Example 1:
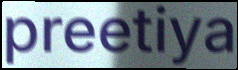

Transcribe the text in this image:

preetiya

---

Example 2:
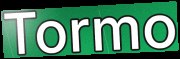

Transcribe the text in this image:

Tormo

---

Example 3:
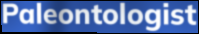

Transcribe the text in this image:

Paleontologist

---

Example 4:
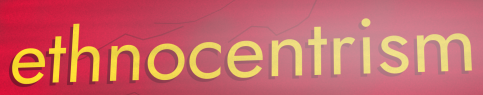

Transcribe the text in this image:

ethnocentrism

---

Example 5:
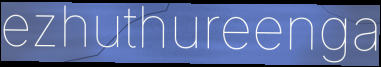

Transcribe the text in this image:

ezhuthureenga